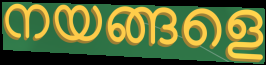
നയങ്ങളെ